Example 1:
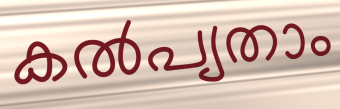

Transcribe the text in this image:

കൽപ്യതാം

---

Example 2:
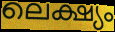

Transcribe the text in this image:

ലെക്ഷ്യം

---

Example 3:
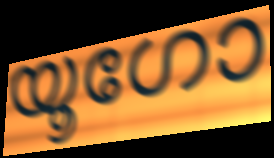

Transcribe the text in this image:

യൂഗോ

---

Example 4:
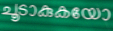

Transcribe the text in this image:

ചൂടാകുകയോ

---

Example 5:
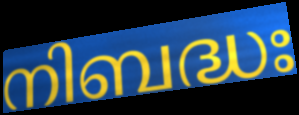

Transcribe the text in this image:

നിബദ്ധഃ